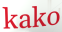
kako